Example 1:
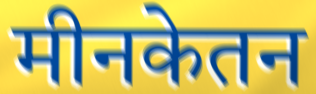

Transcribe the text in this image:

मीनकेतन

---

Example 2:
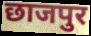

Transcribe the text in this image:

छाजपुर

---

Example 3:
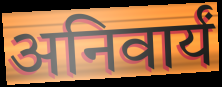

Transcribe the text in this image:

अनिवार्यं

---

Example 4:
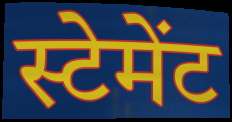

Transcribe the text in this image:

स्टेमेंट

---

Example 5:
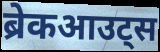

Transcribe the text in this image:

ब्रेकआउट्स